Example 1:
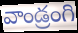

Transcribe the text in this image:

వాండ్రంగి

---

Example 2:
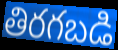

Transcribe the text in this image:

తిరగబడి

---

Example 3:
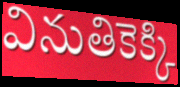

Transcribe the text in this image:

వినుతికెక్కి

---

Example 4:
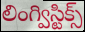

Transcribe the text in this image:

లింగ్విస్టిక్స్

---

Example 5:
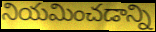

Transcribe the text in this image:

నియమించడాన్ని